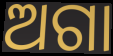
ଅଗା